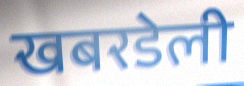
खबरडेली